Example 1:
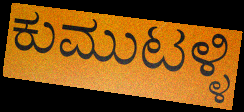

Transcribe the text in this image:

ಕುಮುಟಳ್ಳಿ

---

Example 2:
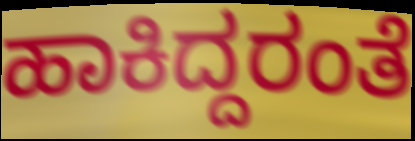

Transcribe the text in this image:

ಹಾಕಿದ್ದರಂತೆ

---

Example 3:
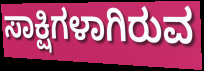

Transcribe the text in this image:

ಸಾಕ್ಷಿಗಳಾಗಿರುವ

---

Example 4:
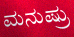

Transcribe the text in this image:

ಮನುಷ್ರು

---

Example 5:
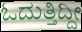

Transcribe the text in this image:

ಓದುತ್ತಿದ್ದೀ